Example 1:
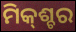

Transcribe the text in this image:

ମିକ୍‌ଶ୍ଚର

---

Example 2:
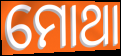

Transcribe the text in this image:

ମୋଥା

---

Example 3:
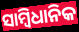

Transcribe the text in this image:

ସାମ୍ବିଧାନିକ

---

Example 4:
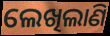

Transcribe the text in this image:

ଲେଖିଲାଣି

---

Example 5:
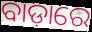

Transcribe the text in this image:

ବାଡ଼ାରେ